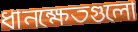
ধানক্ষেতগুলো